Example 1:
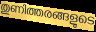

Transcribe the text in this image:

തുണിത്തരങ്ങളുടെ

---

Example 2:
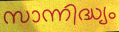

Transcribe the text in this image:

സാന്നിദ്ധ്യം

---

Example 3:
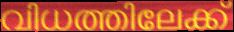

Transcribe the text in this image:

വിധത്തിലേക്ക്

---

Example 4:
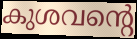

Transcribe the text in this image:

കുശവന്റെ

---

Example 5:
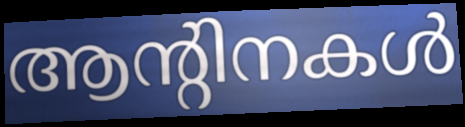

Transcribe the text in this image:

ആന്റിനകൾ